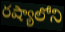
రష్యాలోని